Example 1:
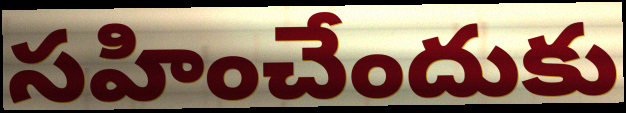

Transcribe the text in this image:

సహించేందుకు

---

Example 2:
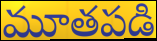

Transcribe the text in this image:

మూతపడి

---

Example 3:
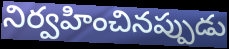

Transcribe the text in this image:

నిర్వహించినప్పుడు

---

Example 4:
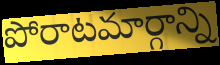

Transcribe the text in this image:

పోరాటమార్గాన్ని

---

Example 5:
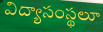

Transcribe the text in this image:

విద్యాసంస్థలూ